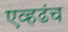
एव्हढंच